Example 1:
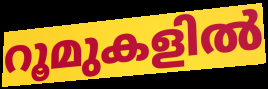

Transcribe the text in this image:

റൂമുകളിൽ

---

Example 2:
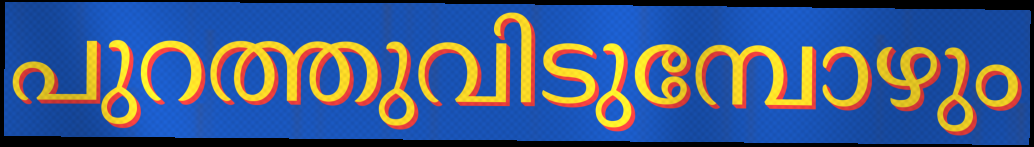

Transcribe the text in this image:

പുറത്തുവിടുമ്പോഴും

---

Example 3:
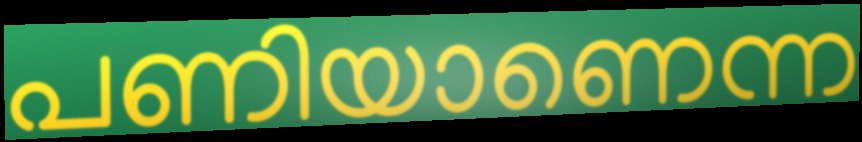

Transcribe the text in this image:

പണിയാണെന്ന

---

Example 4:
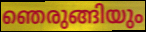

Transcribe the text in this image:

ഞെരുങ്ങിയും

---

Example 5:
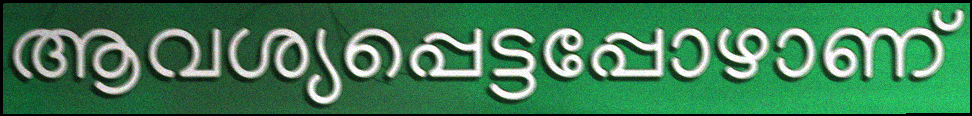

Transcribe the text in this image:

ആവശ്യപ്പെട്ടപ്പോഴാണ്